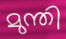
മുന്തി